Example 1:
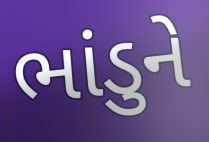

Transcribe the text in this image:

ભાંડુને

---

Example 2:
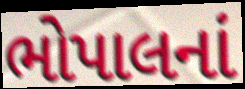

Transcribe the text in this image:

ભોપાલનાં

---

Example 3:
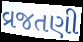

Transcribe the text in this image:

વ્રજતણી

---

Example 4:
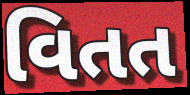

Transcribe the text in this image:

વિતત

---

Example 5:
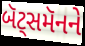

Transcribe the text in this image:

બૅટ્સમૅનને